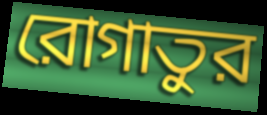
রোগাতুর